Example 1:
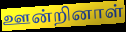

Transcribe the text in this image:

ஊன்றினாள்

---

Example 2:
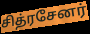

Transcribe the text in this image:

சித்ரசேனர்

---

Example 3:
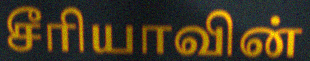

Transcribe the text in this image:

சீரியாவின்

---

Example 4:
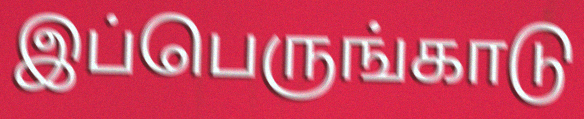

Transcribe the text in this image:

இப்பெருங்காடு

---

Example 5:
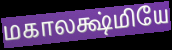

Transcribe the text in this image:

மகாலக்ஷ்மியே